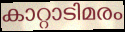
കാറ്റാടിമരം